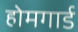
होमगार्ड